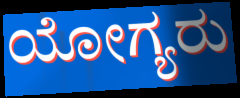
ಯೋಗ್ಯರು